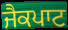
ਜੈਕਪਾਟ